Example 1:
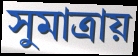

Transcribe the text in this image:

সুমাত্রায়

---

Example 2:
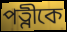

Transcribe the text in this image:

পত্নীকে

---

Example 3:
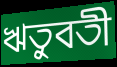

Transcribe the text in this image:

ঋতুবতী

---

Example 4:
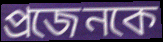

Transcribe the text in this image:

প্রজেনকে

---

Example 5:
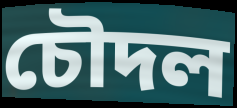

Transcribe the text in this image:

চৌদল